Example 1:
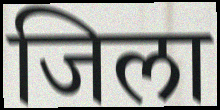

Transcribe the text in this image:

जिला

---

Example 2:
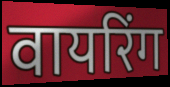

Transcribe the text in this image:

वायरिंग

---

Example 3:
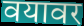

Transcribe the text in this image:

वयावर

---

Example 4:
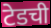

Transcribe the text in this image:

टेडची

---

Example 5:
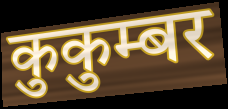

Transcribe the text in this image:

कुकुम्बर